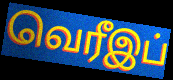
வெரீஇப்